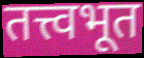
तत्त्वभूत